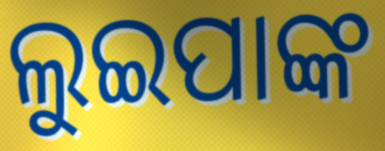
ଲୁଇପାଙ୍କ